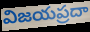
విజయప్రదా